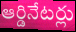
ఆర్డినేటర్లు